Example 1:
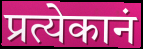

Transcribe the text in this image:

प्रत्येकानं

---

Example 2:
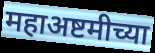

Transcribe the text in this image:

महाअष्टमीच्या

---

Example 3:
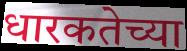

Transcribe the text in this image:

धारकतेच्या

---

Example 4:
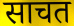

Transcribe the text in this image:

साचत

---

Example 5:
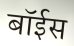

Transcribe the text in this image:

बॉईस